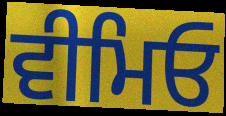
ਵੀਮਿਓ